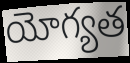
యోగ్యత